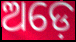
ଅଡ଼େ